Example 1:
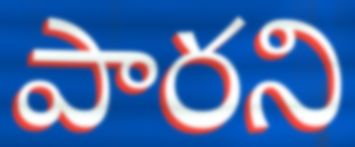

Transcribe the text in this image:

పారని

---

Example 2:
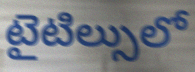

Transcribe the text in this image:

టైటిల్సులో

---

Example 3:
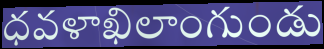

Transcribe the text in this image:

ధవళాఖిలాంగుండు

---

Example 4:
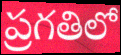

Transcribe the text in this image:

ప్రగతిలో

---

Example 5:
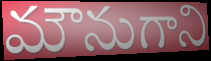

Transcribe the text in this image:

మౌనుగాని